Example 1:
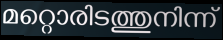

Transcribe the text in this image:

മറ്റൊരിടത്തുനിന്ന്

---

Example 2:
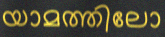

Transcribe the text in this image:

യാമത്തിലോ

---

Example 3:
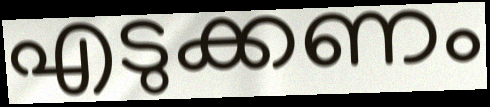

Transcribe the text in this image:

എടുക്കണം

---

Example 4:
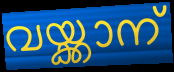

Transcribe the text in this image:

വയ്ക്കാന്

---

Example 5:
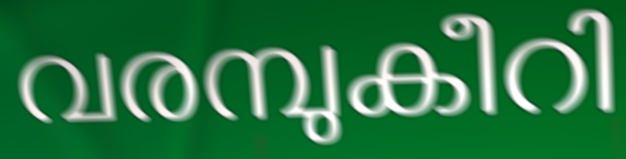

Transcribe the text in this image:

വരമ്പുകീറി